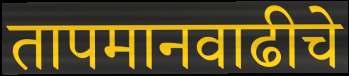
तापमानवाढीचे